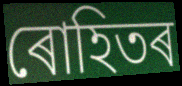
ৰোহিতৰ